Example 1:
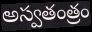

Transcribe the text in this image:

అస్వతంత్రం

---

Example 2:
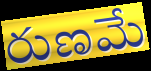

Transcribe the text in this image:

రుణమే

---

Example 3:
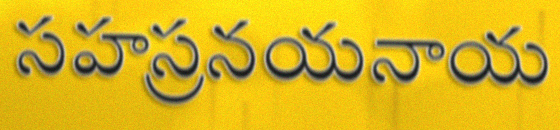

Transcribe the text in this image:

సహస్రనయనాయ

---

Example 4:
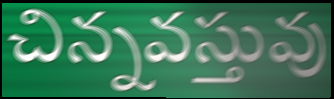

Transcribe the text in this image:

చిన్నవస్తువు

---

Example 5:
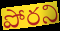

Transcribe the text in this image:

పోరని